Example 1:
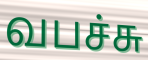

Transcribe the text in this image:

வபச்சு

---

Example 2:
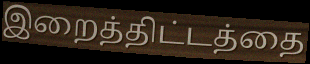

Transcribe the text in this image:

இறைத்திட்டத்தை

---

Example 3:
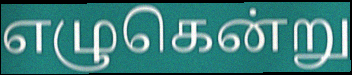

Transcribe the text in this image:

எழுகென்று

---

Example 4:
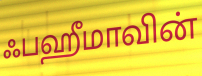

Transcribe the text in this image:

ஃபஹீமாவின்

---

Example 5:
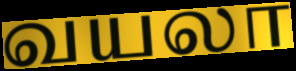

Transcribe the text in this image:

வயலா